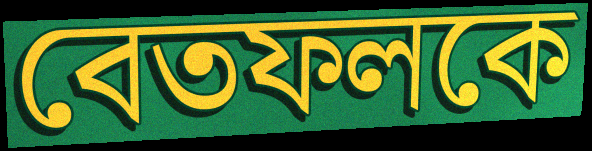
বেতফলকে